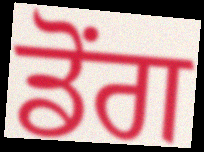
ਡੋਂਗ